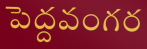
పెద్దవంగర